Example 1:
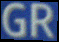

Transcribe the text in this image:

GR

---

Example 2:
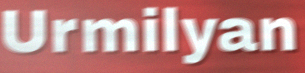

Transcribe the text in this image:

Urmilyan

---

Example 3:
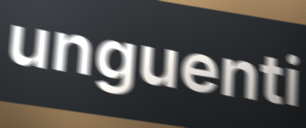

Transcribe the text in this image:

unguenti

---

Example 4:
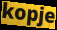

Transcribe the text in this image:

kopje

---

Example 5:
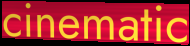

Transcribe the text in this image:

cinematic